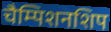
चैम्पिशनशिप